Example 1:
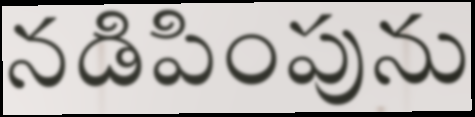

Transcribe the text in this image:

నడిపింపును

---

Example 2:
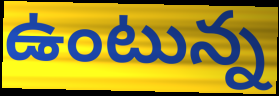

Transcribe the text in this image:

ఉంటున్న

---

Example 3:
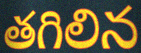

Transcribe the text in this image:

తగిలిన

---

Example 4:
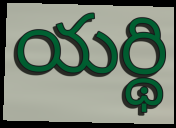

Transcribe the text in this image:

యర్థి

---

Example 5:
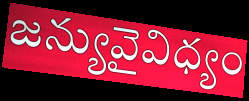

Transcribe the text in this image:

జన్యువైవిధ్యం